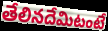
తేలినదేమిటంటే